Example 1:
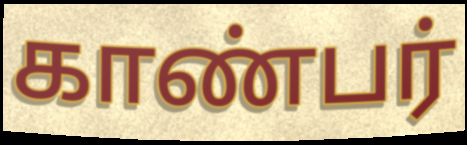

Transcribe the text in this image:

காண்பர்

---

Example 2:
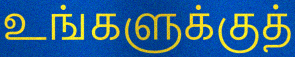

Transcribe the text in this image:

உங்களுக்குத்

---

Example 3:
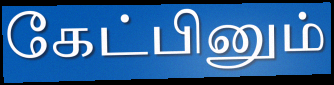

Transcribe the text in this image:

கேட்பினும்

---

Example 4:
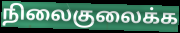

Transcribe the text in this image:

நிலைகுலைக்க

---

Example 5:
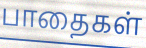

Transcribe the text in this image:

பாதைகள்